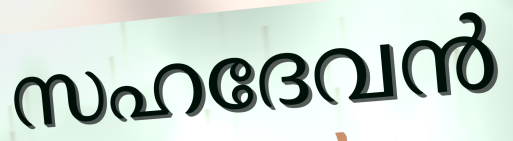
സഹദേവൻ